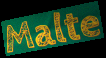
Malte